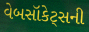
વેબસૉકેટ્સની